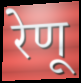
रेणू